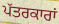
ਪੱਤਰਕਾਰਾਂ